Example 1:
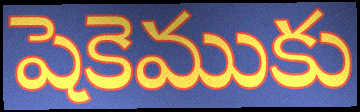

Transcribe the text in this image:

షెకెముకు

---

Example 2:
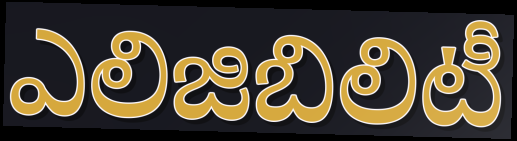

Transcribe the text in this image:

ఎలిజిబిలిటీ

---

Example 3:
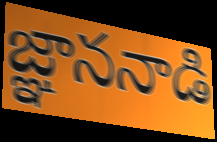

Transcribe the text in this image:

జ్ఞాననాడి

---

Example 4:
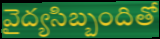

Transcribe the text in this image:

వైద్యసిబ్బందితో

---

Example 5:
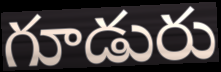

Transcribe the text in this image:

గూడురు